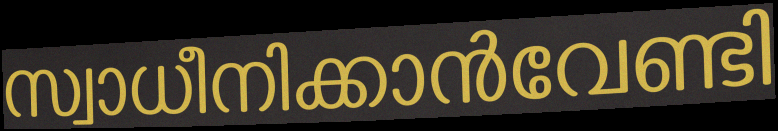
സ്വാധീനിക്കാൻവേണ്ടി